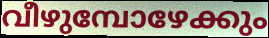
വീഴുമ്പോഴേക്കും